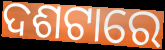
ଦଶଟାରେ